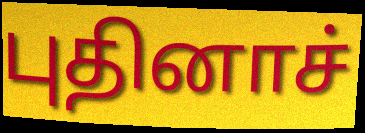
புதினாச்